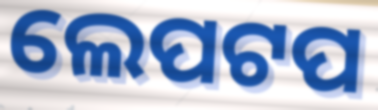
ଲେପଟପ